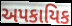
અપકાયિક